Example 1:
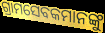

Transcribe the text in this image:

ଗ୍ରାମସେବକମାନଙ୍କୁ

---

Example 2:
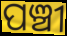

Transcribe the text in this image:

ପଞ୍ଚୀ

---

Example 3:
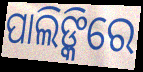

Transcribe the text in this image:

ପାଲିଙ୍କିରେ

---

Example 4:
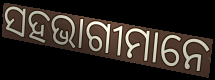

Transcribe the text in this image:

ସହଭାଗୀମାନେ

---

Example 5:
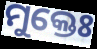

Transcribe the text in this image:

ମୁକ୍ତେଃ